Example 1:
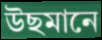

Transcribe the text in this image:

উছমানে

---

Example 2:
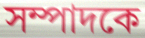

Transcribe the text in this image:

সম্পাদকে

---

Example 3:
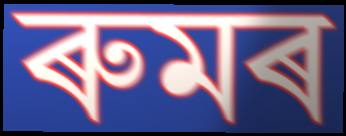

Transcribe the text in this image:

ৰুমৰ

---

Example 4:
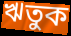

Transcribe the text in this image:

ঋতুক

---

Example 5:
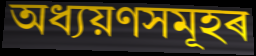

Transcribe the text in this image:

অধ্যয়ণসমূহৰ